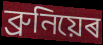
ব্ৰুনিয়েৰ